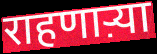
राहणाऱ्‍या